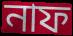
নাফ